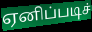
ஏனிப்படிச்